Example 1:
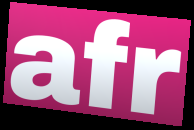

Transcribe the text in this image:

afr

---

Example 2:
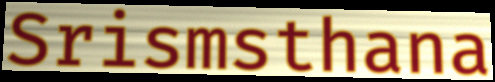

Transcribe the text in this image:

Srismsthana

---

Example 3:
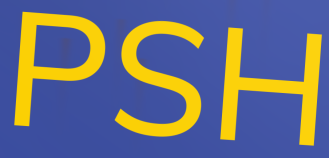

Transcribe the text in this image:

PSH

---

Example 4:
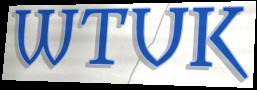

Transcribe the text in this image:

WTUK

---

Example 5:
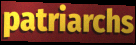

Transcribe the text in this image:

patriarchs